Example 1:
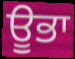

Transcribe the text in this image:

ਊਭਾ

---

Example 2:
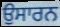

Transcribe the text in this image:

ਉਸਾਰਨ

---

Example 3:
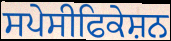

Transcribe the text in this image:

ਸਪੇਸੀਫਿਕੇਸ਼ਨ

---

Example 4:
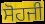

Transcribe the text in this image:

ਸੋਹਜੀ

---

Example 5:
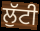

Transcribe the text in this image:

ਲੁੱਟੀ